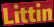
Littin